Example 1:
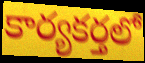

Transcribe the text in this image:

కార్యకర్తలో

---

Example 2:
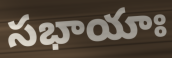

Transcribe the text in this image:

సభాయాః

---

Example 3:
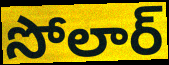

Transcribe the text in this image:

సోలార్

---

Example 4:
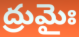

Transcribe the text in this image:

ద్రుమైః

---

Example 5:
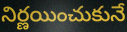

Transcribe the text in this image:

నిర్ణయించుకునే